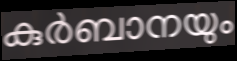
കുർബാനയും